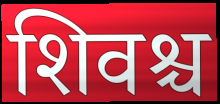
शिवश्च